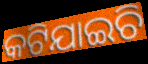
କଟିଯାଇଚି